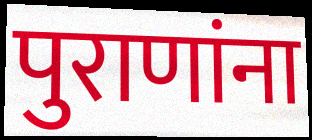
पुराणांना